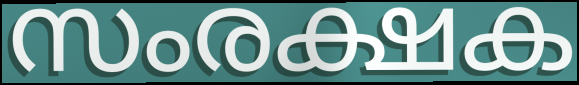
സംരക്ഷക